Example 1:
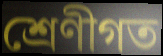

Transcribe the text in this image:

শ্ৰেণীগত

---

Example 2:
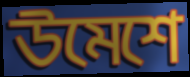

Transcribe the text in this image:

উমেশে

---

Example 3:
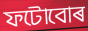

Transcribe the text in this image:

ফটোবোৰ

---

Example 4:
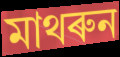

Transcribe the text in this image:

মাথৰুন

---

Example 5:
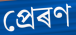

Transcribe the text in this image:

প্ৰেৰণ